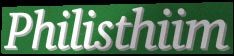
Philisthiim